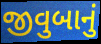
જીવુબાનું